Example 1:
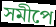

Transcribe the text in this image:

সমীপে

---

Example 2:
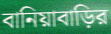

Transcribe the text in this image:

বানিয়াবাড়ির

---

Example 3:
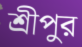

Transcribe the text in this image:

শ্রীপুর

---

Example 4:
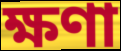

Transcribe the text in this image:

ক্ষণা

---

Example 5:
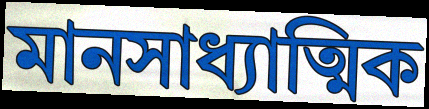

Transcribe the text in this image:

মানসাধ্যাত্মিক